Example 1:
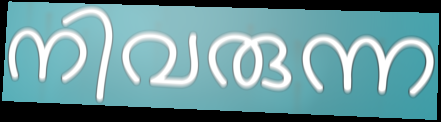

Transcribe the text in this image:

നിവരുന്ന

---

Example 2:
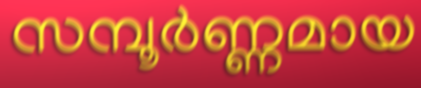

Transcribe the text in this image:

സമ്പൂർണ്ണമായ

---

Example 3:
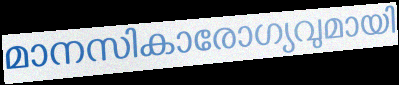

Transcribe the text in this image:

മാനസികാരോഗ്യവുമായി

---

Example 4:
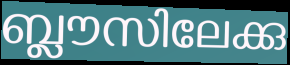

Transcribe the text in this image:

ബ്ലൗസിലേക്കു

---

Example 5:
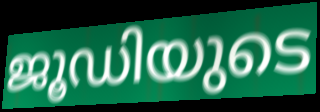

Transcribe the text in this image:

ജൂഡിയുടെ